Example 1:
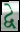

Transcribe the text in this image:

દ્વે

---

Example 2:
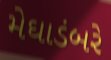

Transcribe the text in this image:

મેઘાડંબરે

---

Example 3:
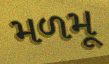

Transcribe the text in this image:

મળમૂ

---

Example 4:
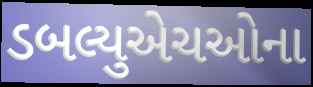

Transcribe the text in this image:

ડબલ્યુએચઓના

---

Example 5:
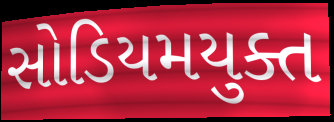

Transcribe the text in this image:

સોડિયમયુક્ત